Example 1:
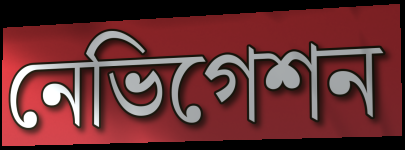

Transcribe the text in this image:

নেভিগেশন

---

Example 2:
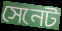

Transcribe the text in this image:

সেনেট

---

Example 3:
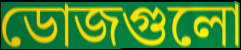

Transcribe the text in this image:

ডোজগুলো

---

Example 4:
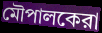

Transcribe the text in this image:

মৌপালকেরা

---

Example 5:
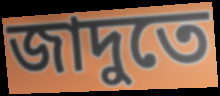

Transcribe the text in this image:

জাদুতে